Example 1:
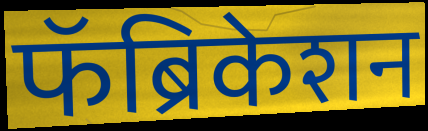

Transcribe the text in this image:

फॅब्रिकेशन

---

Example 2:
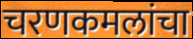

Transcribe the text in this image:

चरणकमलांचा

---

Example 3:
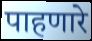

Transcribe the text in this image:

पाहणारे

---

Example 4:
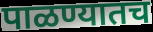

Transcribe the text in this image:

पाळण्यातच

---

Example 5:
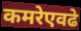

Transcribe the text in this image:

कमरेएवढे